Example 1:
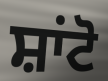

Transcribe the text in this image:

ਸ਼ਾਂਟੋ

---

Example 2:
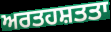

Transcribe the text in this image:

ਅਰਤਹਸ਼ਤਤਾ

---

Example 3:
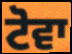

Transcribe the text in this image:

ਟੋਵਾ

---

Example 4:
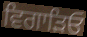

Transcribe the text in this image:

ਵਿਗਾੜਿਓ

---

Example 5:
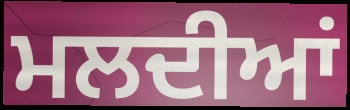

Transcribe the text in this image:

ਮਲਦੀਆਂ